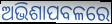
ଅଭିଶାପବଳରେ